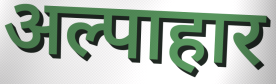
अल्पाहार